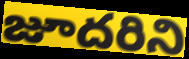
జూదరిని